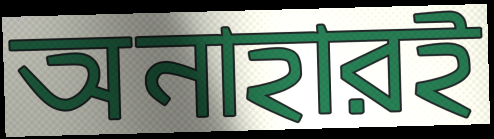
অনাহারই